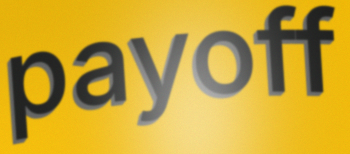
payoff